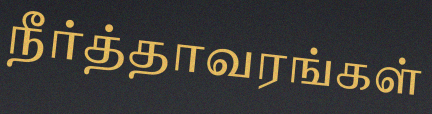
நீர்த்தாவரங்கள்